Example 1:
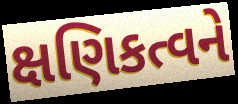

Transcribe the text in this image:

ક્ષણિકત્વને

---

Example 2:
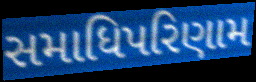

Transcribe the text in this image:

સમાધિપરિણામ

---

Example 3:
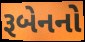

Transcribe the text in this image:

રૂબેનનો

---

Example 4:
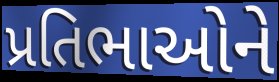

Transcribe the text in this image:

પ્રતિભાઓને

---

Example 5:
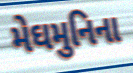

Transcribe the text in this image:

મેઘમુનિના